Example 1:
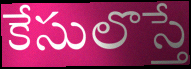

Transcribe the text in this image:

కేసులొస్తే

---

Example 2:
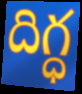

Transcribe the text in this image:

దిగ్ధ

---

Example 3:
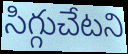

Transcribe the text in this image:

సిగ్గుచేటని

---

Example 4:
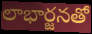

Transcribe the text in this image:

లాభార్జనతో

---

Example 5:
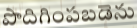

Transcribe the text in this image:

పొదిగింపబడెను